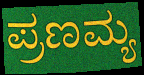
ಪ್ರಣಮ್ಯ